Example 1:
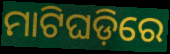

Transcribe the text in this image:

ମାଟିଘଡ଼ିରେ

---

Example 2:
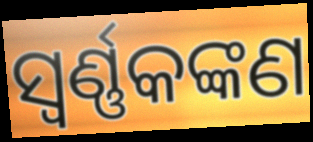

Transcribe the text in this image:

ସ୍ୱର୍ଣ୍ଣକଙ୍କଣ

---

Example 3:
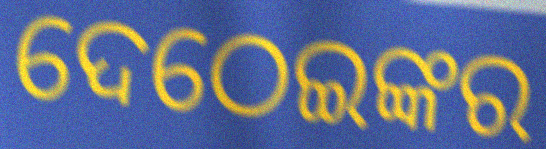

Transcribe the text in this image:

ଦେଠେଇଙ୍କର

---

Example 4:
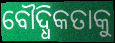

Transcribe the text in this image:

ବୌଦ୍ଧିକତାକୁ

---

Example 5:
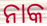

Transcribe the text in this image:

ନାକ